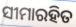
ସୀମାରହିତ